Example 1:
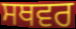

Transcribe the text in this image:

ਸਥਵਰ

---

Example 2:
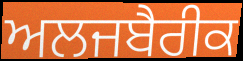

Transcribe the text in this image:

ਅਲਜਬੈਰੀਕ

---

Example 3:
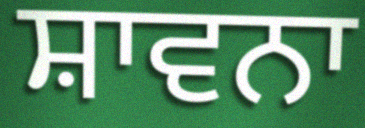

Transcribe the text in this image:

ਸ਼ਾਵਨਾ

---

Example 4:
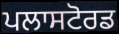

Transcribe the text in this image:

ਪਲਾਸਟੋਰਡ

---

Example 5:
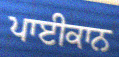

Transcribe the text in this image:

ਪਾਈਕਾਨ